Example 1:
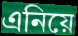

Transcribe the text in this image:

এনিয়ে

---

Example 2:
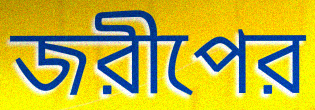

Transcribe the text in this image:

জরীপের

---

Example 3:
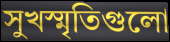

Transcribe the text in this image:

সুখস্মৃতিগুলো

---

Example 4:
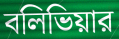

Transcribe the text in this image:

বলিভিয়ার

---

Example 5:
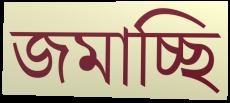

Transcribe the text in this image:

জমাচ্ছি